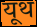
यूथ